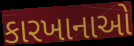
કારખાનાઓ